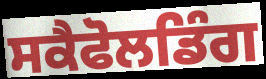
ਸਕੈਫੋਲਡਿੰਗ